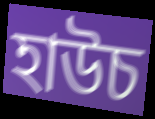
হাউচ